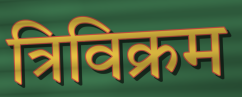
त्रिविक्रम